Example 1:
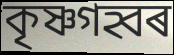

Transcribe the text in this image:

কৃষ্ণগহ্বৰ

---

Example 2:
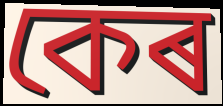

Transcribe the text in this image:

কেৰ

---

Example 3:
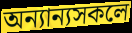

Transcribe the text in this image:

অন্যান্যসকলে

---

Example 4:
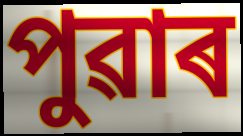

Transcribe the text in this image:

পুৱাৰ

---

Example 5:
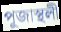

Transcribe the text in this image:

পূজাস্থলী